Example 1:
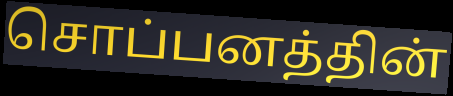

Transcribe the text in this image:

சொப்பனத்தின்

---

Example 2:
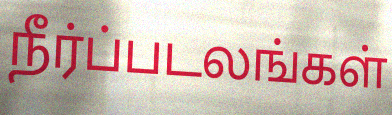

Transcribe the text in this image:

நீர்ப்படலங்கள்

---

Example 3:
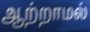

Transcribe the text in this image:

ஆற்றாமல்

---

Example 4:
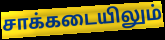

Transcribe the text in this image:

சாக்கடையிலும்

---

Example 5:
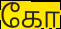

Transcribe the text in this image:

கோ